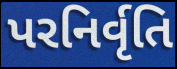
પરનિર્વૃતિ